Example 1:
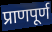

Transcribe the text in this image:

प्राणपूर्ण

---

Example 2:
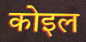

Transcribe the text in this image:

कोइल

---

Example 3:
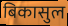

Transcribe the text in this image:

बिकासुल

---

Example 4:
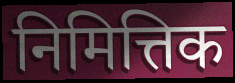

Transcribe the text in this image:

निमित्तिक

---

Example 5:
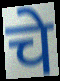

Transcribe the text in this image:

चे